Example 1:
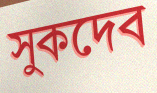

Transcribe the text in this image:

সুকদেব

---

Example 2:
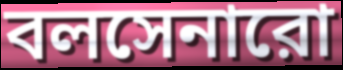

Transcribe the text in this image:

বলসেনারো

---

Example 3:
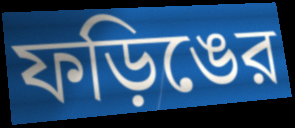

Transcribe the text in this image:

ফড়িঙের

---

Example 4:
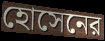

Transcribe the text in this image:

হোসেনের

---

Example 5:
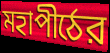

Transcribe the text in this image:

মহাপীঠের